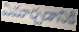
ఏమార్చడానికి